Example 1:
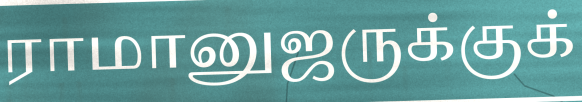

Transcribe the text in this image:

ராமானுஜருக்குக்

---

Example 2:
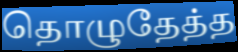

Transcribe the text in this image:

தொழுதேத்த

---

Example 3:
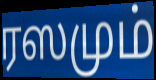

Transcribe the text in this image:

ரஸமும்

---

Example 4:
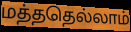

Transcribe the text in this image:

மத்ததெல்லாம்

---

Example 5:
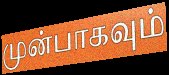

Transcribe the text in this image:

முன்பாகவும்